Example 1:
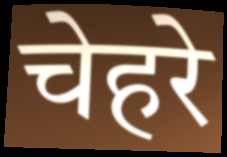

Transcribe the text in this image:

चेहरे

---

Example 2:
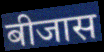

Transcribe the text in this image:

बीजास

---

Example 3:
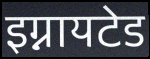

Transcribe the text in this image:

इग्नायटेड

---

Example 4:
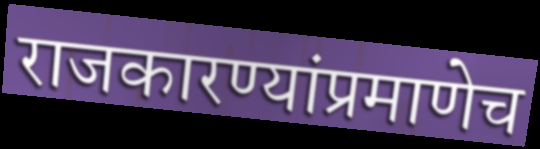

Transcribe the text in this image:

राजकारण्यांप्रमाणेच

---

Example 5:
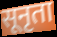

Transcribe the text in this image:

सूनृता